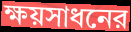
ক্ষয়সাধনের